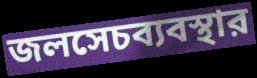
জলসেচব্যবস্থার